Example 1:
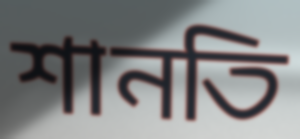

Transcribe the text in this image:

শানতি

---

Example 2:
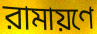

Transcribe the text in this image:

রামায়ণে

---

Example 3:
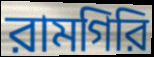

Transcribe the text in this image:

রামগিরি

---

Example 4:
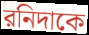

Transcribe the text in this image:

রনিদাকে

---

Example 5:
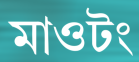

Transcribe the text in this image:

মাওটং